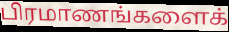
பிரமாணங்களைக்